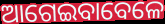
ଆଗେଇବାବେଳେ